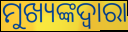
ମୁଖ୍ୟଙ୍କଦ୍ଵାରା